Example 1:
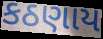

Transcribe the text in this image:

કઠણાય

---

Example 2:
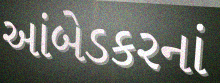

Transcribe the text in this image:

આંબેડકરનાં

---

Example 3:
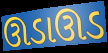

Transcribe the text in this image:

ઊડાઊડ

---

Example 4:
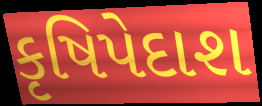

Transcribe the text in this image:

કૃષિપેદાશ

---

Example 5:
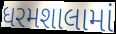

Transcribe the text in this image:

ધરમશાલામાં